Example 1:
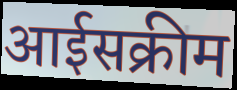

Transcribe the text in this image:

आईसक्रीम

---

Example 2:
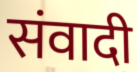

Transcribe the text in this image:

संवादी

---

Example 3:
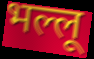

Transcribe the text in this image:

भल्लू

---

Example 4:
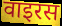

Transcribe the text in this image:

वाइरस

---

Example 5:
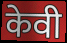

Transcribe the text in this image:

केवी